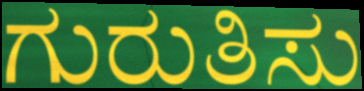
ಗುರುತಿಸು